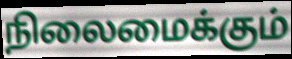
நிலைமைக்கும்